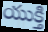
యుక్తి